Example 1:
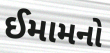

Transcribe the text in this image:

ઈમામનો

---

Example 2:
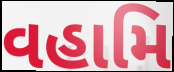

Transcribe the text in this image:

વહામિ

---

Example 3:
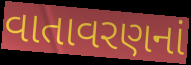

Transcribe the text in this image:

વાતાવરણનાં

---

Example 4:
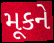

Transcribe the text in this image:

મૂકને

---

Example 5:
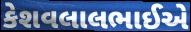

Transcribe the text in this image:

કેશવલાલભાઈએ